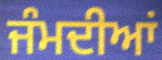
ਜੰਮਦੀਆਂ